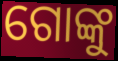
ଗୋଙ୍କୁ